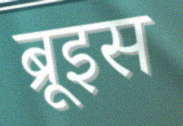
ब्रूइस